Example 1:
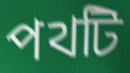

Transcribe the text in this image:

পথটি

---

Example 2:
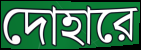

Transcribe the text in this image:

দোহারে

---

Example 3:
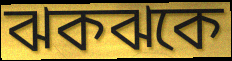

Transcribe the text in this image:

ঝকঝকে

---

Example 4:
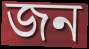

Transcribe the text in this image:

জন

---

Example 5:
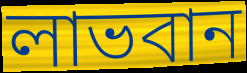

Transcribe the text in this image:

লাভবান